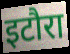
इटौरा